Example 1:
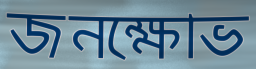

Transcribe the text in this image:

জনক্ষোভ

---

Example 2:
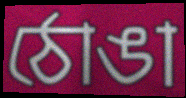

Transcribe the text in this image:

ঠোঙা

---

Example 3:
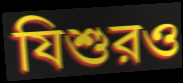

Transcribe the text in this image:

যিশুরও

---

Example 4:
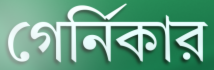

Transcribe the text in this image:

গের্নিকার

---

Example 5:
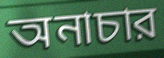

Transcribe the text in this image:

অনাচার